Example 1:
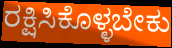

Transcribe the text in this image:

ರಕ್ಷಿಸಿಕೊಳ್ಳಬೇಕು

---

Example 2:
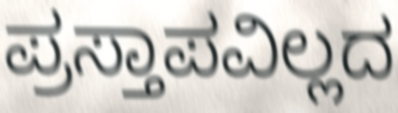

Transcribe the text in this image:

ಪ್ರಸ್ತಾಪವಿಲ್ಲದ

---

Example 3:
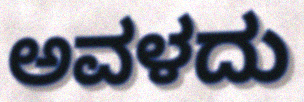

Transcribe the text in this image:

ಅವಳದು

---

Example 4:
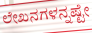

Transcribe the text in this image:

ಲೇಖನಗಳನ್ನಷ್ಟೇ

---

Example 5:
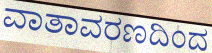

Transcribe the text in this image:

ವಾತಾವರಣದಿಂದ